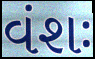
વંશઃ